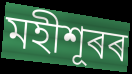
মহীশূৰৰ